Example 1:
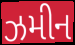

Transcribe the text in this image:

ઝમીન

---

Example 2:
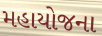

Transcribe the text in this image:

મહાયોજના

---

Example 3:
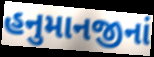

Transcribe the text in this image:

હનુમાનજીનાં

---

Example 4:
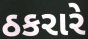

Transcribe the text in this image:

ઠકરારે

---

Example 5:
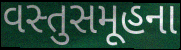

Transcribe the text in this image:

વસ્તુસમૂહના